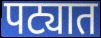
पट्यात